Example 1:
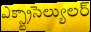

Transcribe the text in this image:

ఎక్స్ట్రాసెల్యులర్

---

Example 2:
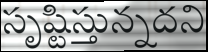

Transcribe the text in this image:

సృష్టిస్తున్నదని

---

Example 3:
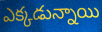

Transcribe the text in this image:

ఎక్కడున్నాయి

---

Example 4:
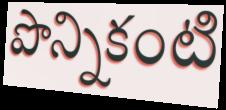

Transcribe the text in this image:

పొన్నికంటి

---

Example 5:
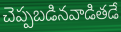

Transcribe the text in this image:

చెప్పబడినవాడితడే